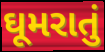
ઘૂમરાતું